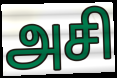
அசி